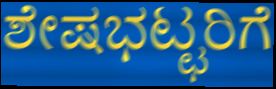
ಶೇಷಭಟ್ಟರಿಗೆ